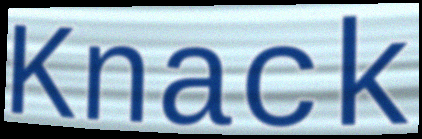
Knack